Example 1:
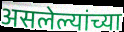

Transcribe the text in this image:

असलेल्यांच्या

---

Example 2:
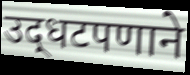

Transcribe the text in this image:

उद्धटपणाने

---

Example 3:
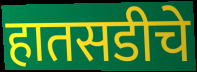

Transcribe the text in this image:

हातसडीचे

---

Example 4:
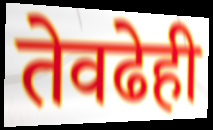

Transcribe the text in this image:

तेवढेही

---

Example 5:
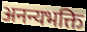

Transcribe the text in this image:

अनन्यभक्ति